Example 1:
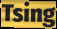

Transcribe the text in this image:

Tsing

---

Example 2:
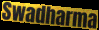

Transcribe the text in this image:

Swadharma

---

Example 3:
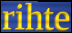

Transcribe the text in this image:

rihte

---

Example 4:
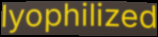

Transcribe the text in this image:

lyophilized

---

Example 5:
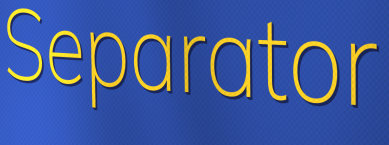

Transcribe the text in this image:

Separator